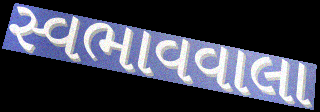
સ્વભાવવાલા